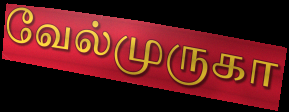
வேல்முருகா